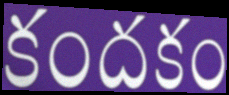
కందకం